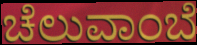
ಚೆಲುವಾಂಬೆ